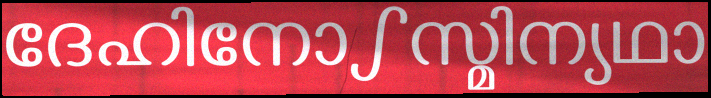
ദേഹിനോഽസ്മിന്യഥാ